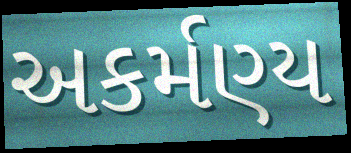
અકર્મણ્ય